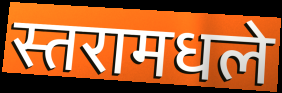
स्तरामधले